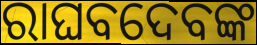
ରାଘବଦେବଙ୍କ